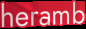
heramb